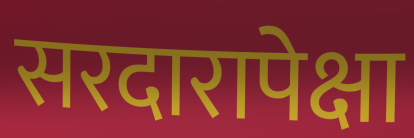
सरदारापेक्षा